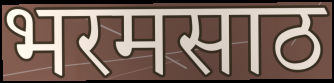
भरमसाठ